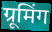
ग्रूमिंग